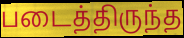
படைத்திருந்த